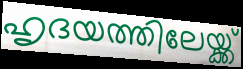
ഹൃദയത്തിലേയ്ക്ക്